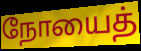
நோயைத்